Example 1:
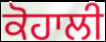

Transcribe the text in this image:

ਕੋਹਾਲੀ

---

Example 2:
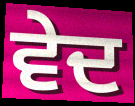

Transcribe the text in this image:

ਵੇਦ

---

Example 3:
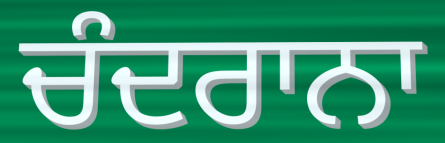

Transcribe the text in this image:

ਚੰਦਰਾਨਾ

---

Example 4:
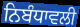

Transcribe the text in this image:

ਨਿਬੰਧਾਵਲੀ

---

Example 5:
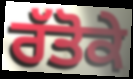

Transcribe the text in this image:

ਰੱਤੋਕੇ